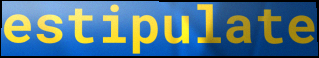
estipulate